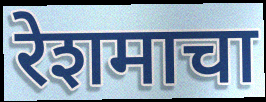
रेशमाचा